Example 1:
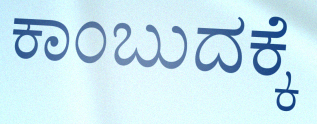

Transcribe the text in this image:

ಕಾಂಬುದಕ್ಕೆ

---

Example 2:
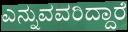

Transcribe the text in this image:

ಎನ್ನುವವರಿದ್ದಾರೆ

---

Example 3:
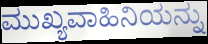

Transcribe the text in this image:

ಮುಖ್ಯವಾಹಿನಿಯನ್ನು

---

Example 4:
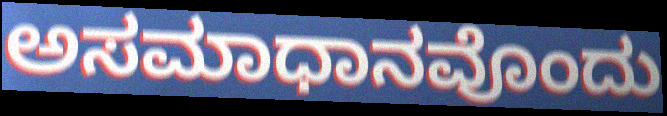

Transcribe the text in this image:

ಅಸಮಾಧಾನವೊಂದು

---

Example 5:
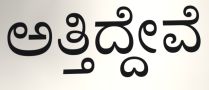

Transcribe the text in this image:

ಅತ್ತಿದ್ದೇವೆ